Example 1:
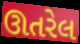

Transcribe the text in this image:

ઊતરેલ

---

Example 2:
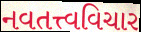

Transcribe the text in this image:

નવતત્ત્વવિચાર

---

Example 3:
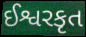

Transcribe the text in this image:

ઈશ્વરકૃત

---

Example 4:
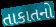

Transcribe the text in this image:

તાકાતનો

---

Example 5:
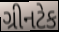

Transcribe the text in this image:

ગ્રીનટેક